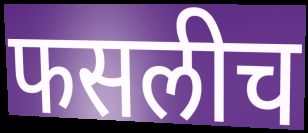
फसलीच